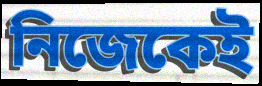
নিজেকেই